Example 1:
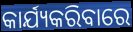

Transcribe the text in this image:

କାର୍ଯ୍ୟକରିବାରେ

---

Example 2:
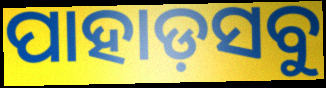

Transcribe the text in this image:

ପାହାଡ଼ସବୁ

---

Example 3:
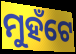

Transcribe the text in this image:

ମୁହଁଟେ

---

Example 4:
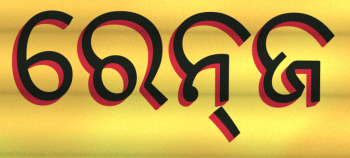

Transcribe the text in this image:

ରେନ୍‍ଜ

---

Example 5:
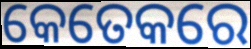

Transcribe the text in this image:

କେତେକରେ